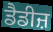
ਡੈਡੀਜ਼